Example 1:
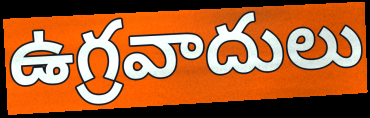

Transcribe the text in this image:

ఉగ్రవాదులు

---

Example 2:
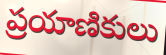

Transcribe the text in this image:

ప్రయాణికులు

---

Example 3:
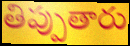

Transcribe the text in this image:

తిప్పుతారు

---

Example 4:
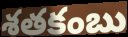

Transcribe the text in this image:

శతకంబు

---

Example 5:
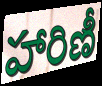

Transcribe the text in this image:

హారిణీ